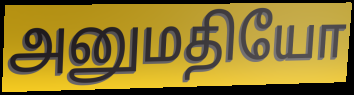
அனுமதியோ